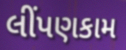
લીંપણકામ